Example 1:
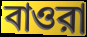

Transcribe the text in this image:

বাওরা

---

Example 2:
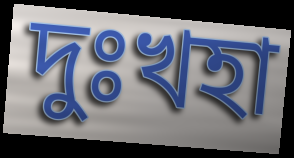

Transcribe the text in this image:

দুঃখহা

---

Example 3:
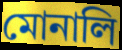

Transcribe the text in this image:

মোনালি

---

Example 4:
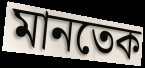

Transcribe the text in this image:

মানতেক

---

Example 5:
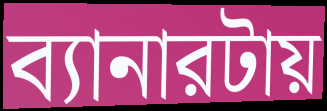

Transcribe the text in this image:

ব্যানারটায়